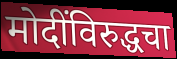
मोदींविरुद्धचा